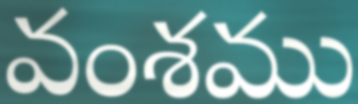
వంశము